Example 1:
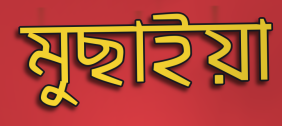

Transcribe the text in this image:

মুছাইয়া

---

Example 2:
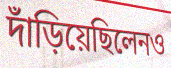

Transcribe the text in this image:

দাঁড়িয়েছিলেনও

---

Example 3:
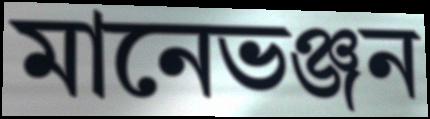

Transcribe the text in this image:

মানেভঞ্জন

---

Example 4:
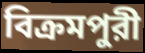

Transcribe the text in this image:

বিক্রমপুরী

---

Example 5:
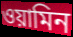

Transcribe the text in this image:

ওয়ামিন